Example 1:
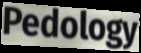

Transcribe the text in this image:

Pedology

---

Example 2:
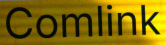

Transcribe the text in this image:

Comlink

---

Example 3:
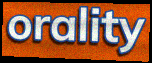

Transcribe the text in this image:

orality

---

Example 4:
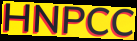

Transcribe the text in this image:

HNPCC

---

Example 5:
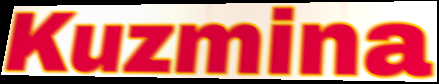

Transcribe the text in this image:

Kuzmina